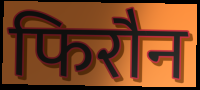
फिरौन